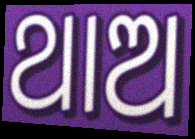
ଥାଅ